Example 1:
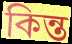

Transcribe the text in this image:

কিন্ত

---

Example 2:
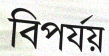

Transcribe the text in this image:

বিপর্যয়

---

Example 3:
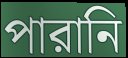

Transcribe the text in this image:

পারানি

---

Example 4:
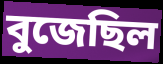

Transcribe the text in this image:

বুজেছিল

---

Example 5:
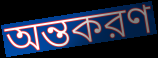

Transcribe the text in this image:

অন্তকরণ